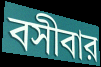
বসীবার